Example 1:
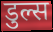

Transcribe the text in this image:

डुल्स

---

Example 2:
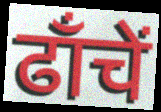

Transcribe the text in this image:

ढाँचें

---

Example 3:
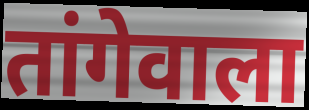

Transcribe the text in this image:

तांगेवाला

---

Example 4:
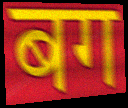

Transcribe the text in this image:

बग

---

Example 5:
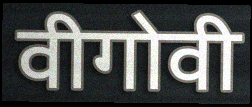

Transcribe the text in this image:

वीगोवी